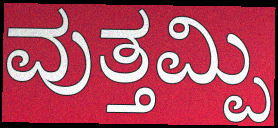
ವುತ್ತಮ್ಪಿ